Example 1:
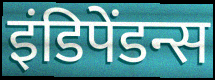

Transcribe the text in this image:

इंडिपेंडन्स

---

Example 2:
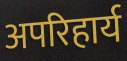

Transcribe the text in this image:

अपरिहार्य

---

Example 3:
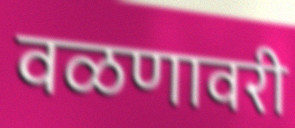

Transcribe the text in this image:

वळणावरी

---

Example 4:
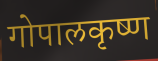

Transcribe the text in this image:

गोपालकृष्ण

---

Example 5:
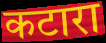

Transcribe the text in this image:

कटारा